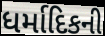
ધર્માદિકની